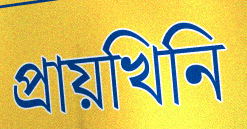
প্ৰায়খিনি